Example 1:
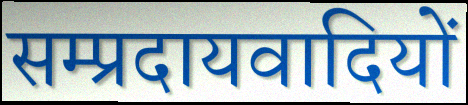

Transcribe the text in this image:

सम्प्रदायवादियों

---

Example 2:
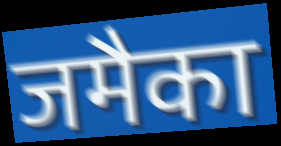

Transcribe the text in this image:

जमैका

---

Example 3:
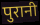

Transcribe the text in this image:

पुरानी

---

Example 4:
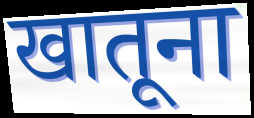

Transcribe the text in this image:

खातूना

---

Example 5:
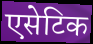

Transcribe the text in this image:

एसेटिक